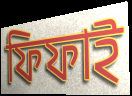
ফিফাই